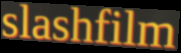
slashfilm